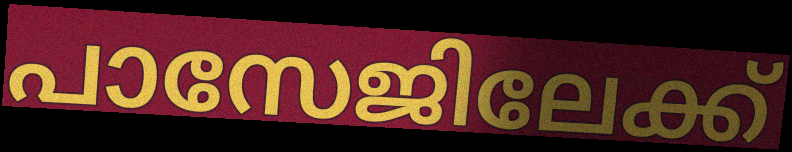
പാസേജിലേക്ക്